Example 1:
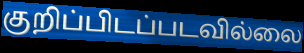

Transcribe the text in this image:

குறிப்பிடப்படவில்லை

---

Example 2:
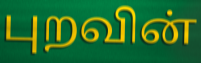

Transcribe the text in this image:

புறவின்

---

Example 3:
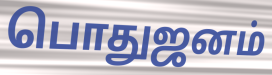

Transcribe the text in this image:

பொதுஜனம்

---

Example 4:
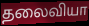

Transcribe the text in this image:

தலைவியா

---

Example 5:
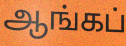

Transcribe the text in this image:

ஆங்கப்